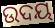
ଉଦୟ